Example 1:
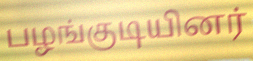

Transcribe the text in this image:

பழங்குடியினர்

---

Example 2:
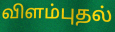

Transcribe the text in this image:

விளம்புதல்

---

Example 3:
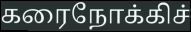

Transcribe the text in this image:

கரைநோக்கிச்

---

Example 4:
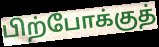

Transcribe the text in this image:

பிற்போக்குத்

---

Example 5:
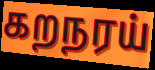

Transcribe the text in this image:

கறநரய்